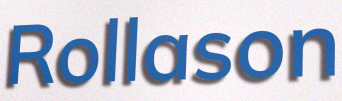
Rollason